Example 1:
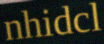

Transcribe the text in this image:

nhidcl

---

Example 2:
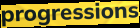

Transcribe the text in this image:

progressions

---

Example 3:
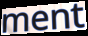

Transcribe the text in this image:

ment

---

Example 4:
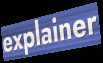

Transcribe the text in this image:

explainer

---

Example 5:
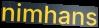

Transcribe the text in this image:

nimhans